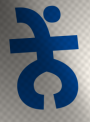
ਨੇਂ